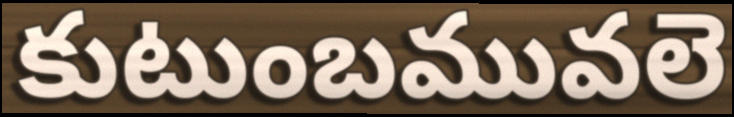
కుటుంబమువలె